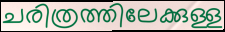
ചരിത്രത്തിലേക്കുള്ള